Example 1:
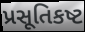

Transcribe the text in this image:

પ્રસૂતિકષ્ટ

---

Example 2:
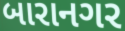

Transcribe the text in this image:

બારાનગર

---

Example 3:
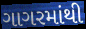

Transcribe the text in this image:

ગાગરમાંથી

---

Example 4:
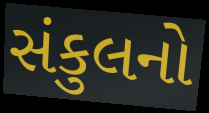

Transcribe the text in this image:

સંકુલનો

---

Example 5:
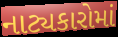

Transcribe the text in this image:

નાટ્યકારોમાં